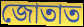
জোতাত